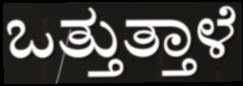
ಒತ್ತುತ್ತಾಳೆ